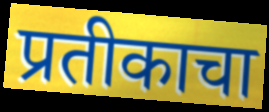
प्रतीकाचा